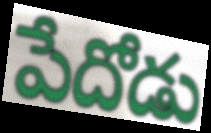
పేదోడు